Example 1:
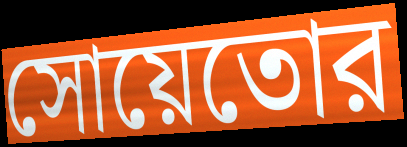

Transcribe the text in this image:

সোয়েতোর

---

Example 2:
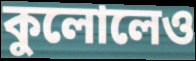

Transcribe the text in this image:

কুলোলেও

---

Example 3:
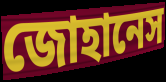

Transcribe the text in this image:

জোহানেস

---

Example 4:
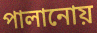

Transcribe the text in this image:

পালানোয়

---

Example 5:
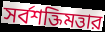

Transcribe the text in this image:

সর্বশক্তিমত্তার